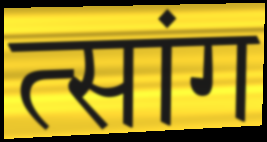
त्सांग